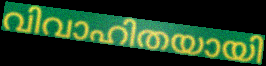
വിവാഹിതയായി